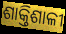
ଶାକ୍ତିଶାଳୀ